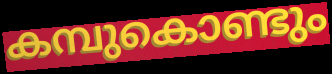
കമ്പുകൊണ്ടും